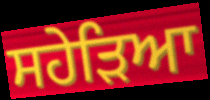
ਸਹੇੜਿਆ